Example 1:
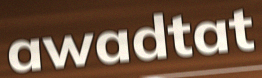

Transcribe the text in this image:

awadtat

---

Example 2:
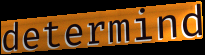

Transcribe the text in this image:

determind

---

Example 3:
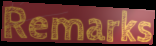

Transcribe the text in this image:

Remarks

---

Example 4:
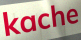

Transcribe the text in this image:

kache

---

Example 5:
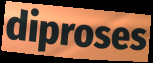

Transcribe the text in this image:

diproses